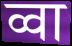
व्वा